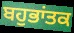
ਬਹੁਭਾਂਤਕ